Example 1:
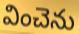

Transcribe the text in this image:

వించెను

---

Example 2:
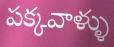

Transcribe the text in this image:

పక్కవాళ్ళు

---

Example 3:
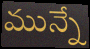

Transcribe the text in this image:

మున్నే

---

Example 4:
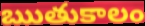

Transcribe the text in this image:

ఋతుకాలం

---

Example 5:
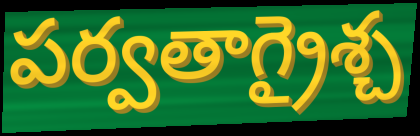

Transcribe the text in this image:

పర్వతాగ్రైశ్చ